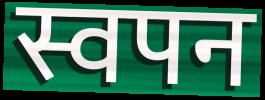
स्वपन